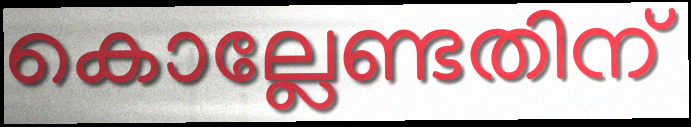
കൊല്ലേണ്ടതിന്